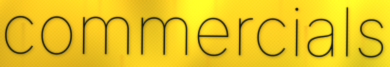
commercials